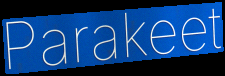
Parakeet